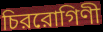
চিররোগিণী